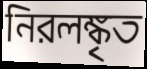
নিরলঙ্কৃত